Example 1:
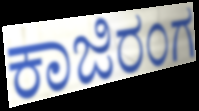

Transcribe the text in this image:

ಕಾಜಿರಂಗ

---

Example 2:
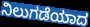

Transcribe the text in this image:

ನಿಲುಗಡೆಯಾದ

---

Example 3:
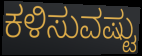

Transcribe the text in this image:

ಕಳಿಸುವಷ್ಟು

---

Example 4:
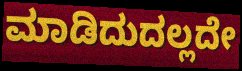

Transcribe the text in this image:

ಮಾಡಿದುದಲ್ಲದೇ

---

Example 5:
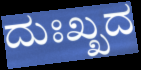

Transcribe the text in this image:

ದುಃಖ್ಖದ